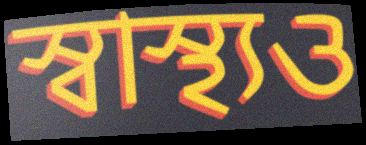
স্বাস্থ্যও